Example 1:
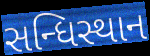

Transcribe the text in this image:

સન્ધિસ્થાન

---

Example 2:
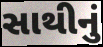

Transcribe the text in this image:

સાથીનું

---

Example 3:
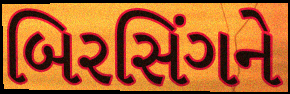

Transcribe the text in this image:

બિરસિંગને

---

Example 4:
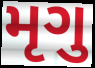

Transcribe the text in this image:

મૃગુ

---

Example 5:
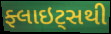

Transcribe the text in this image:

ફ્લાઇટ્સથી